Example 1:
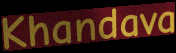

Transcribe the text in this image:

Khandava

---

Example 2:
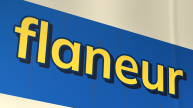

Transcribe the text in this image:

flaneur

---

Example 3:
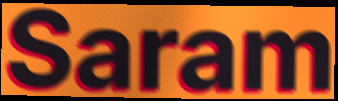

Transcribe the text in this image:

Saram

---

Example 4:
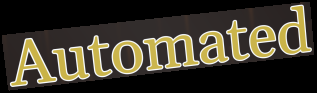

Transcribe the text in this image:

Automated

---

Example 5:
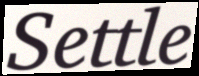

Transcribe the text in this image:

Settle